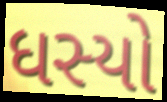
ધસ્યો